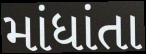
માંધાંતા